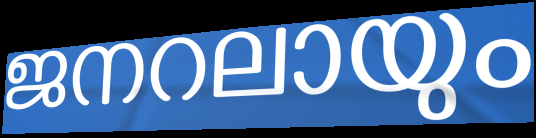
ജനറലായും